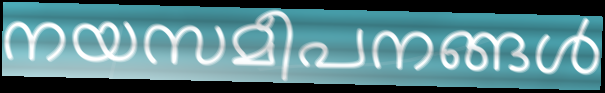
നയസമീപനങ്ങൾ